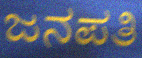
ಜನಪತಿ